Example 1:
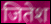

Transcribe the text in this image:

जितेश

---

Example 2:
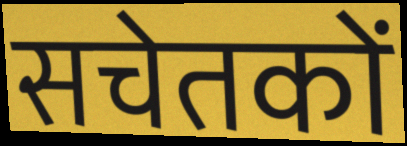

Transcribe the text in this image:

सचेतकों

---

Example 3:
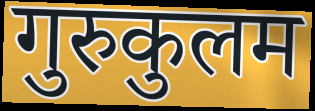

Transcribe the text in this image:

गुरुकुलम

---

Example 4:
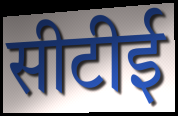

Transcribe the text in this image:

सीटीई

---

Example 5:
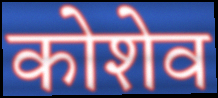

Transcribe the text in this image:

कोशेव